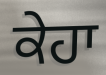
ਕੇਹਾ